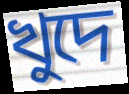
খুদে